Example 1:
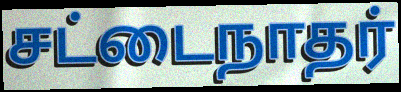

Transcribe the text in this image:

சட்டைநாதர்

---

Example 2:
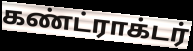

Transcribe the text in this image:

கண்ட்ராக்டர்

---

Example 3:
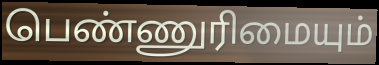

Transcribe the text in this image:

பெண்ணுரிமையும்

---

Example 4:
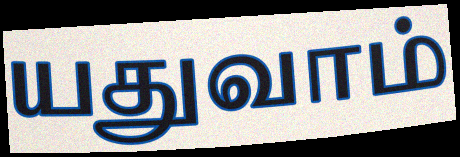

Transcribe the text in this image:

யதுவாம்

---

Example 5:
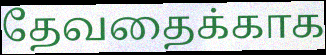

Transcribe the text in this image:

தேவதைக்காக